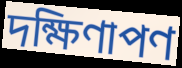
দক্ষিণাপণ